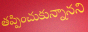
తప్పించుకున్నానని